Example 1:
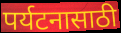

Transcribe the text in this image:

पर्यटनासाठी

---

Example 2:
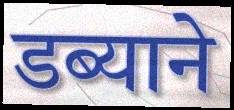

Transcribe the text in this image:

डब्याने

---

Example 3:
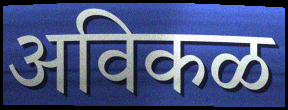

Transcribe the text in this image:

अविकळ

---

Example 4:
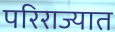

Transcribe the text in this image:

परिराज्यात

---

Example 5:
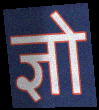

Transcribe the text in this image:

ज्ञो